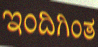
ಇಂದಿಗಿಂತ